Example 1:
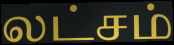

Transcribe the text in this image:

லட்சம்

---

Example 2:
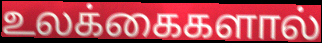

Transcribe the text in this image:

உலக்கைகளால்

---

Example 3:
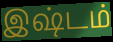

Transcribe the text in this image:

இஷ்டம்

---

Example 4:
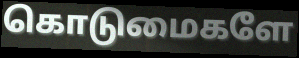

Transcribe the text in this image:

கொடுமைகளே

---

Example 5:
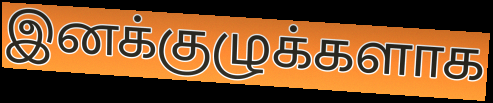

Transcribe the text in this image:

இனக்குழுக்களாக